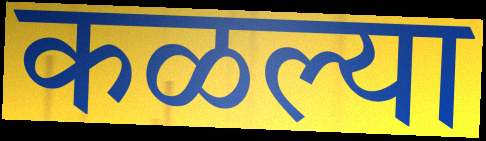
कळल्या